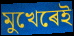
মুখেৰেই